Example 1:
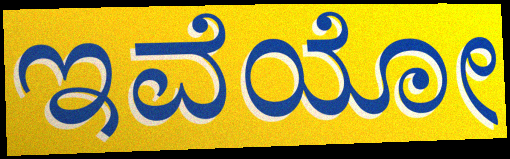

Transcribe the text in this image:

ಇವೆಯೋ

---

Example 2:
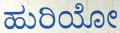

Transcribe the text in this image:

ಹುರಿಯೋ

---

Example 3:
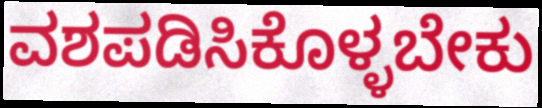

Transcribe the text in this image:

ವಶಪಡಿಸಿಕೊಳ್ಳಬೇಕು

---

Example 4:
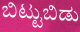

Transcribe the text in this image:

ಬಿಟ್ಟುಬಿಡು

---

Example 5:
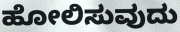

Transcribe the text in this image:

ಹೋಲಿಸುವುದು